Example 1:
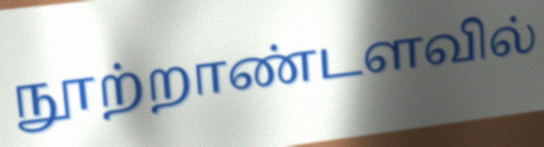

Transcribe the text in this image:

நூற்றாண்டளவில்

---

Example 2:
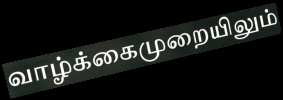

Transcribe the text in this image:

வாழ்க்கைமுறையிலும்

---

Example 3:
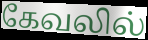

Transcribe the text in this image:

கேவலில்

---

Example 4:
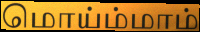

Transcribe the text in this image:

மொய்ம்மாம்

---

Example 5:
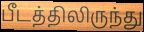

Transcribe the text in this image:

பீடத்திலிருந்து